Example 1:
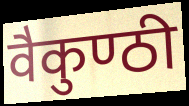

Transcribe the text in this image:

वैकुण्ठी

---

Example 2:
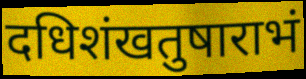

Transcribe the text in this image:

दधिशंखतुषाराभं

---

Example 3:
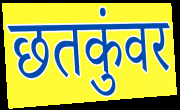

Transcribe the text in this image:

छतकुंवर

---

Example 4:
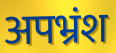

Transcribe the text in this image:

अपभ्रंश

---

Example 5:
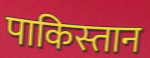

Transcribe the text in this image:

पाकिस्‍तान